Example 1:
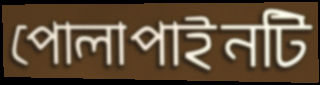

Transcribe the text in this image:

পোলাপাইনটি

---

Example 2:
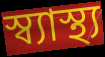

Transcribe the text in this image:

স্ব্যাস্থ্য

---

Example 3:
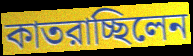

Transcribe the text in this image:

কাতরাচ্ছিলেন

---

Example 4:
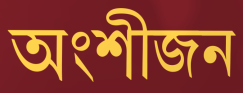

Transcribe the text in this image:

অংশীজন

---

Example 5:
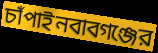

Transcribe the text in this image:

চাঁপাইনবাবগঞ্জের